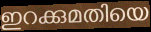
ഇറക്കുമതിയെ